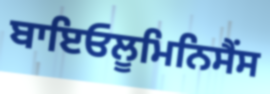
ਬਾਇਓਲੂਮਿਨਿਸੈਂਸ